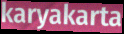
karyakarta